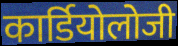
कार्डियोलोजी